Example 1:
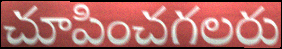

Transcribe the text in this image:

చూపించగలరు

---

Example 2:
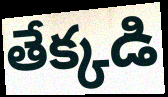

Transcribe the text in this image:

తేక్కడి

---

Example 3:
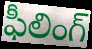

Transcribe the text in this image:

ఫీలింగ్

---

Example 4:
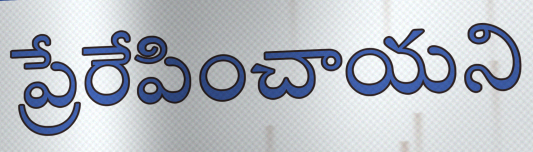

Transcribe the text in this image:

ప్రేరేపించాయని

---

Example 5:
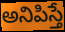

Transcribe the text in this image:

అనిపిస్తే